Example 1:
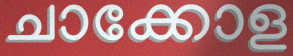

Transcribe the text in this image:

ചാക്കോള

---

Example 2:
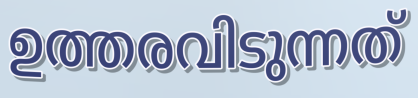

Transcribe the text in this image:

ഉത്തരവിടുന്നത്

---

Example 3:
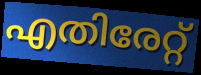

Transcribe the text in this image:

എതിരേറ്റ്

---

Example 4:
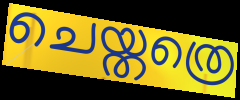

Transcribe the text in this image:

ചെയ്തത്രെ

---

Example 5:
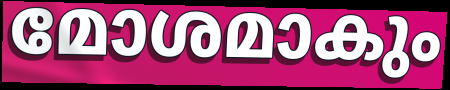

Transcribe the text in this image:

മോശമാകും